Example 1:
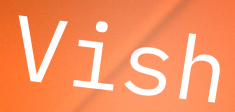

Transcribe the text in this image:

Vish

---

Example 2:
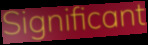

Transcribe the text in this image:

Significant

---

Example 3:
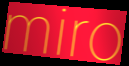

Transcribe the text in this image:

miro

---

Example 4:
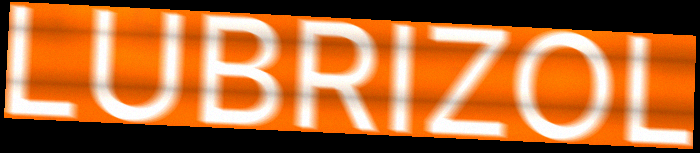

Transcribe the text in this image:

LUBRIZOL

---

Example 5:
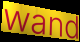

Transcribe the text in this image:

wand